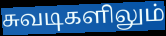
சுவடிகளிலும்